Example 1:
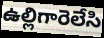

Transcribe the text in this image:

ఉల్లిగారెలేసి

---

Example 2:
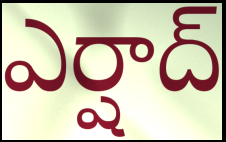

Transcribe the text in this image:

ఎర్షాద్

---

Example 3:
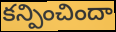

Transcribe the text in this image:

కన్పించిందా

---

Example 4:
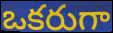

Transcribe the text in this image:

ఒకరుగా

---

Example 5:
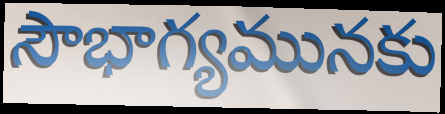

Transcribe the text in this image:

సౌభాగ్యమునకు